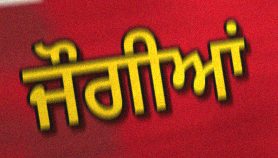
ਜੌਗੀਆਂ